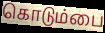
கொடும்பை